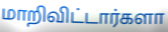
மாறிவிட்டார்களா